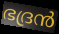
ഭദ്രൻ